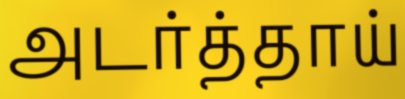
அடர்த்தாய்